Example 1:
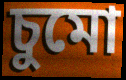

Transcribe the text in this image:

চুমো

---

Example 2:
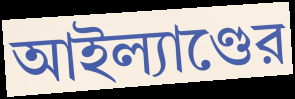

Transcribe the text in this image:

আইল্যাণ্ডের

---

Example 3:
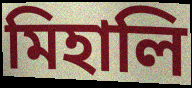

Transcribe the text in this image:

মিহালি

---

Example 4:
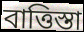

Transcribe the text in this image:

বাত্তিস্তা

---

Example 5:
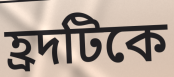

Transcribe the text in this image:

হ্রদটিকে